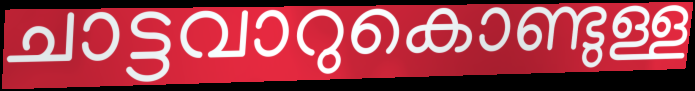
ചാട്ടവാറുകൊണ്ടുള്ള